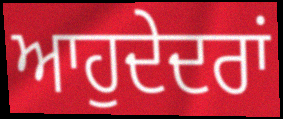
ਆਹੁਦੇਦਰਾਂ